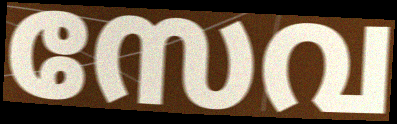
സേവ